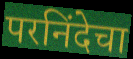
परनिंदेचा